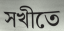
সখীতে